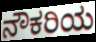
ನೌಕರಿಯ